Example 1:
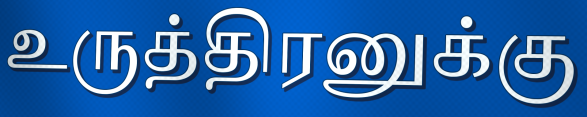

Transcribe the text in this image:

உருத்திரனுக்கு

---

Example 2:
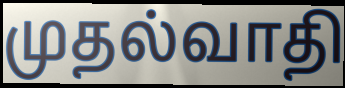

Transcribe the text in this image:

முதல்வாதி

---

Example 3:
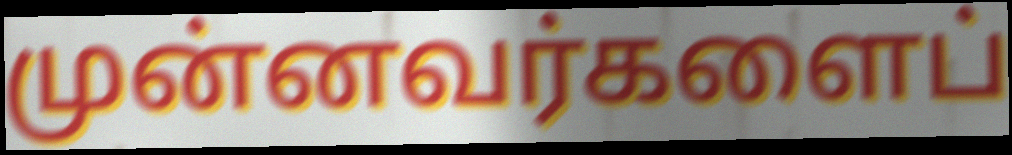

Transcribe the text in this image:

முன்னவர்களைப்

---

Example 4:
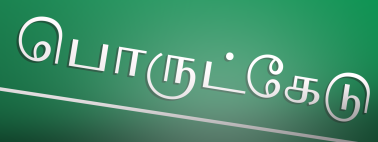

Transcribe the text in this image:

பொருட்கேடு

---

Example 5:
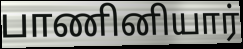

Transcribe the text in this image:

பாணினியார்